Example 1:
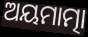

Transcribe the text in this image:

ଅୟମାତ୍ମା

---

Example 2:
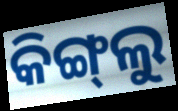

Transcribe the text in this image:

କିଙ୍ଗ୍‌ଲୁ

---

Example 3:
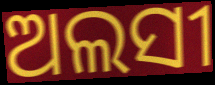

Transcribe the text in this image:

ଅଲସୀ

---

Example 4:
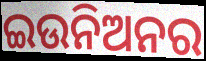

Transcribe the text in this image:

ଇଉନିଅନର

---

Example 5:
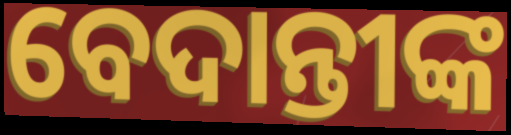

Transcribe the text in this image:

ବେଦାନ୍ତୀଙ୍କ